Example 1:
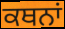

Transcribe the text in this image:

ਕਥਨਾਂ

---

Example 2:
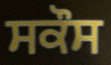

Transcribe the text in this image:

ਸਕੌਸ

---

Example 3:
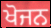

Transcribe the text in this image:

ਖੋਜਨ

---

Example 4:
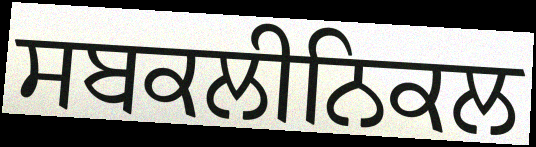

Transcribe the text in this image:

ਸਬਕਲੀਨਿਕਲ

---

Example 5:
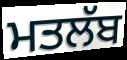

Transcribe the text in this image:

ਮਤਲੱਬ